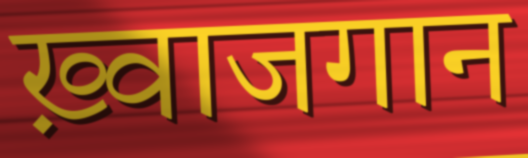
ख़्वाजगान